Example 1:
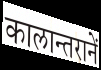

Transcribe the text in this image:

कालान्तरानें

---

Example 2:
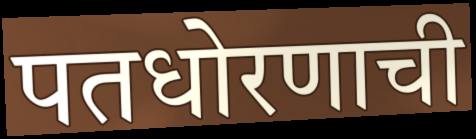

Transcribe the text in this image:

पतधोरणाची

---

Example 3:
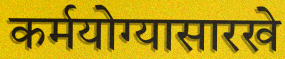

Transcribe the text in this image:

कर्मयोग्यासारखे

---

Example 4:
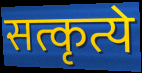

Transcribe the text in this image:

सत्कृत्ये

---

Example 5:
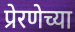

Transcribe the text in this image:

प्रेरणेच्या